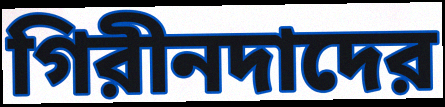
গিরীনদাদের